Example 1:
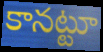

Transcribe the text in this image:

కానట్టూ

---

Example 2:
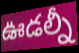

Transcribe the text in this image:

ఊడల్నీ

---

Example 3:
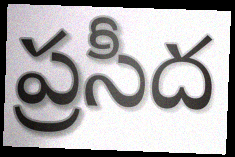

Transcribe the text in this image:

ప్రసీద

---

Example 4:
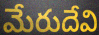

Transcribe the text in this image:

మేరుదేవి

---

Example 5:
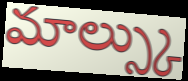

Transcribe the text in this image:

మాల్స్కు